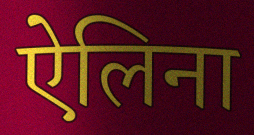
ऐलिना